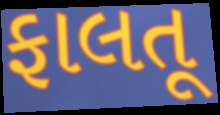
ફાલતૂ